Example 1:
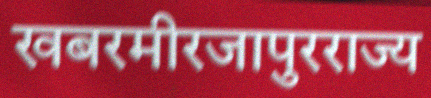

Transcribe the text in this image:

खबरमीरजापुरराज्य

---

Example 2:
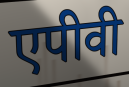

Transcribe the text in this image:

एपीवी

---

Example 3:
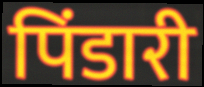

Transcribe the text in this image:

पिंडारी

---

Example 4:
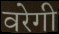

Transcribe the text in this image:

वरेगी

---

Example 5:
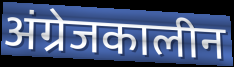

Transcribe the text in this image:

अंग्रेजकालीन